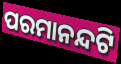
ପରମାନନ୍ଦଟି